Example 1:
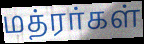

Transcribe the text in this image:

மத்ரர்கள்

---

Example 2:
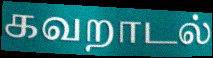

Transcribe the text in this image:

கவறாடல்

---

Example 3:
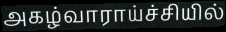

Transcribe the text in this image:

அகழ்வாராய்ச்சியில்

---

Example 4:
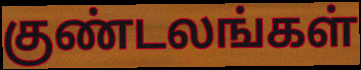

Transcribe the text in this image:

குண்டலங்கள்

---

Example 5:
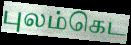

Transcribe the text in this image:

புலம்கெட